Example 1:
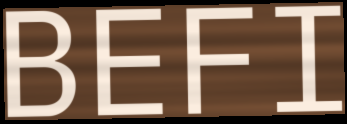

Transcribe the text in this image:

BEFI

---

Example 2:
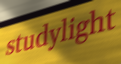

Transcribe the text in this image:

studylight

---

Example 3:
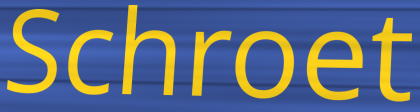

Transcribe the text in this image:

Schroet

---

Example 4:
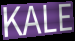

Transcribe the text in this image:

KALE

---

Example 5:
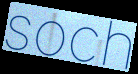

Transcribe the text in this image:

soch